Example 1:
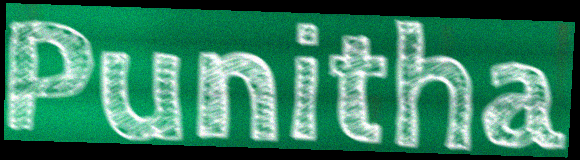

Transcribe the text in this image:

Punitha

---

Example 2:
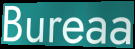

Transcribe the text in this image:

Bureaa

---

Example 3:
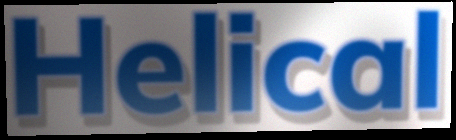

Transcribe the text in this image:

Helical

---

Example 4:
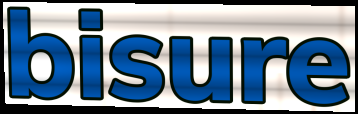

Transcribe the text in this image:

bisure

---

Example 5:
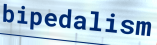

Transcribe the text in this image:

bipedalism